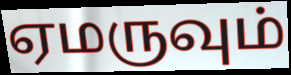
ஏமருவும்